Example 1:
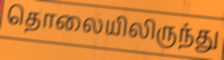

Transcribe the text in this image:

தொலையிலிருந்து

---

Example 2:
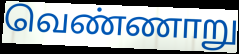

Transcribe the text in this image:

வெண்ணாறு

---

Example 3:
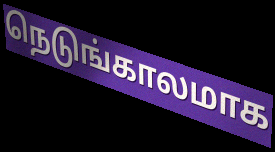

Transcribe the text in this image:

நெடுங்காலமாக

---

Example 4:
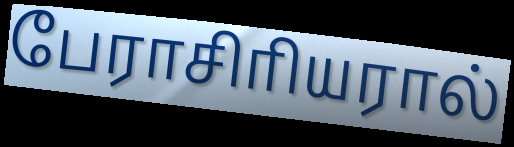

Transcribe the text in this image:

பேராசிரியரால்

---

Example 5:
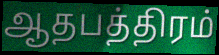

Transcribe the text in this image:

ஆதபத்திரம்